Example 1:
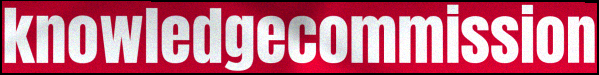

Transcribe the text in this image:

knowledgecommission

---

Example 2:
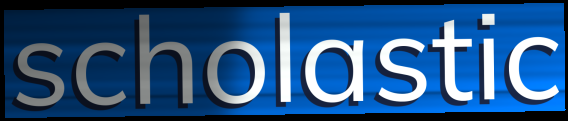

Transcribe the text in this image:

scholastic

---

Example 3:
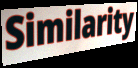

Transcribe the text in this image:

Similarity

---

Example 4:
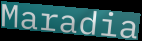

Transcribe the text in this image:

Maradia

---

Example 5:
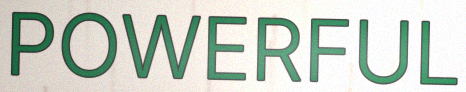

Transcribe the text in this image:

POWERFUL